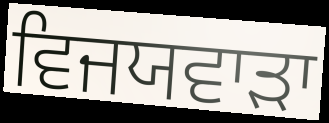
ਵਿਜਯਵਾੜਾ